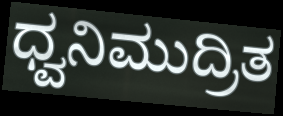
ಧ್ವನಿಮುದ್ರಿತ